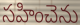
సహించెను